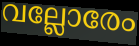
വല്ലോരേം